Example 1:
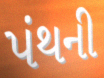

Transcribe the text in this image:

પંથની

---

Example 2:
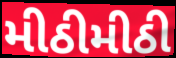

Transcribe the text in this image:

મીઠીમીઠી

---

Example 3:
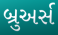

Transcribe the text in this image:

બ્રુઅર્સ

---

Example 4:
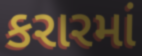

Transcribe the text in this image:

કરારમાં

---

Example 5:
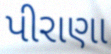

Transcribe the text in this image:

પીરાણા